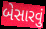
બેસારવું